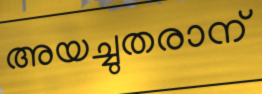
അയച്ചുതരാന്